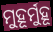
ମୁହୂର୍ମୁହୂ